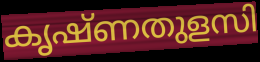
കൃഷ്ണതുളസി